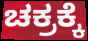
ಚಕ್ರಕ್ಕೆ